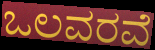
ಒಲವರವೆ